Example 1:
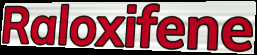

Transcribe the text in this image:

Raloxifene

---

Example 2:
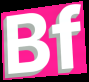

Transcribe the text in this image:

Bf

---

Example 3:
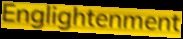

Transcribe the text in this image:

Englightenment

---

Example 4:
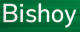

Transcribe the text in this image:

Bishoy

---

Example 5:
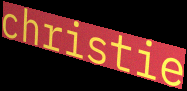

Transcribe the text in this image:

christie